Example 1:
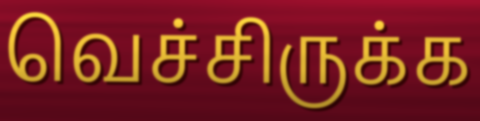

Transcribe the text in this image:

வெச்சிருக்க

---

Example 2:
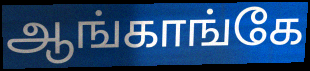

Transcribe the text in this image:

ஆங்காங்கே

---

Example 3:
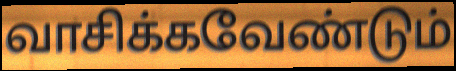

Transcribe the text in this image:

வாசிக்கவேண்டும்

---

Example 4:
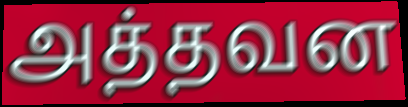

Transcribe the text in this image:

அத்தவன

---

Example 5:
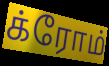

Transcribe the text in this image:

க்ரோம்